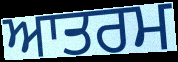
ਆਤਰਮ